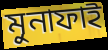
মুনাফাই